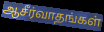
ஆசீர்வாதங்கள்